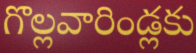
గొల్లవారిండ్లకు